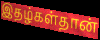
இதழ்கள்தான்